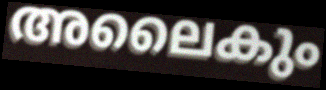
അലൈകും